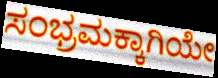
ಸಂಭ್ರಮಕ್ಕಾಗಿಯೇ